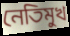
নেতিমুখ